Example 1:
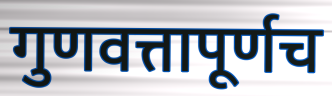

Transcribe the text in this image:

गुणवत्तापूर्णच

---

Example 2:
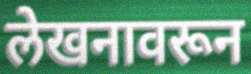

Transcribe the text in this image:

लेखनावरून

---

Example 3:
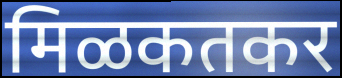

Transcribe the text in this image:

मिळकतकर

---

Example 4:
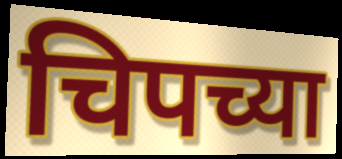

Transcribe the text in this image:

चिपच्या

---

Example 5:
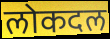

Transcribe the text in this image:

लोकदल